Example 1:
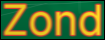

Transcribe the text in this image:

Zond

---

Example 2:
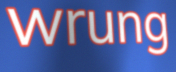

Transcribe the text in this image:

wrung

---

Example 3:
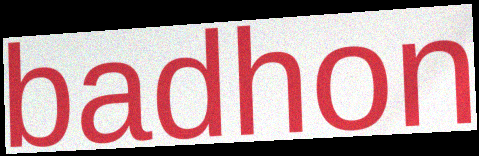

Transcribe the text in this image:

badhon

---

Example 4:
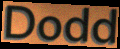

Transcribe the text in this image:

Dodd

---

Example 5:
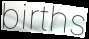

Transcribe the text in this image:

births